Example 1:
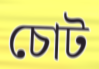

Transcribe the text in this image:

চোট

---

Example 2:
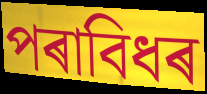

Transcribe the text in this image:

পৰাবিধৰ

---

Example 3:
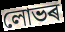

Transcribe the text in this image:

লোভৰ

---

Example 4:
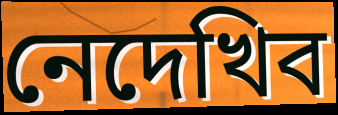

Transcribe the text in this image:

নেদেখিব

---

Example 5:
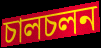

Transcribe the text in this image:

চালচলন